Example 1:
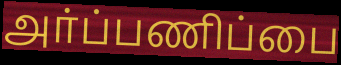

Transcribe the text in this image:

அர்ப்பணிப்பை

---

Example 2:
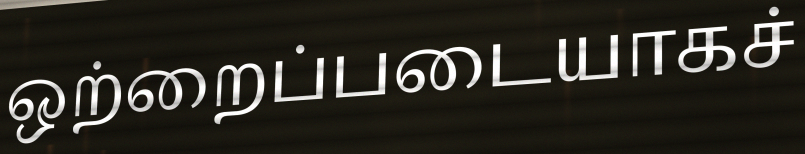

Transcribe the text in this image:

ஒற்றைப்படையாகச்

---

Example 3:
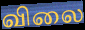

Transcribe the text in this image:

விலை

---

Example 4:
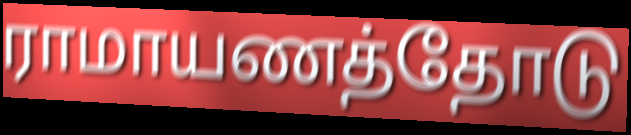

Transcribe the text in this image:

ராமாயணத்தோடு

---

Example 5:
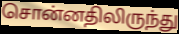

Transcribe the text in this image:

சொன்னதிலிருந்து